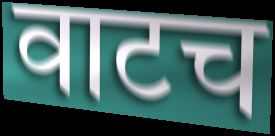
वाटच